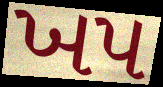
ખપ